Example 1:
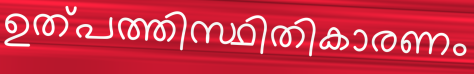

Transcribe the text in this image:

ഉത്പത്തിസ്ഥിതികാരണം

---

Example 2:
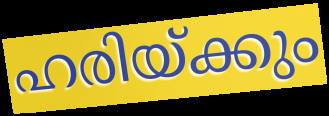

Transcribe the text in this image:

ഹരിയ്ക്കും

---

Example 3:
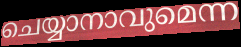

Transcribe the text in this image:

ചെയ്യാനാവുമെന്ന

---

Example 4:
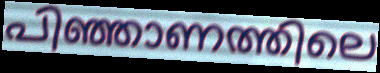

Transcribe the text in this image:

പിഞ്ഞാണത്തിലെ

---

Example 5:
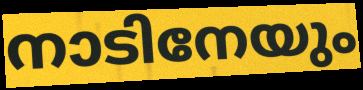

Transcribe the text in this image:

നാടിനേയും